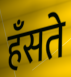
हँसते